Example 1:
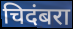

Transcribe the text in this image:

चिदंबरा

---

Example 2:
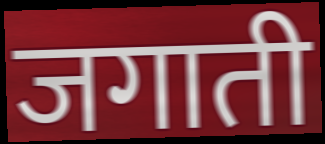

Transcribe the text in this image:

जगाती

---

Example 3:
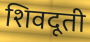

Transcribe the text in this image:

शिवदूती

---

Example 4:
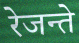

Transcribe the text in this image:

रेजन्ते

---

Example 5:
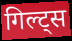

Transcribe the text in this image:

गिल्ट्स